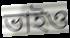
ভাইও